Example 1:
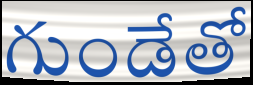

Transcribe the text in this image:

గుండేతో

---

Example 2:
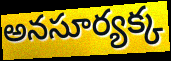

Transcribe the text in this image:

అనసూర్యక్క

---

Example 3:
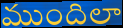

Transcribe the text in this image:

ముందిలా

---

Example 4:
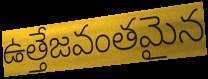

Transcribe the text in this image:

ఉత్తేజవంతమైన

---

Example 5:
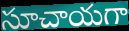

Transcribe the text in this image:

సూచాయగా